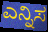
ಎನ್ನಿಸ